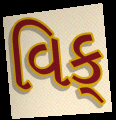
વિક્